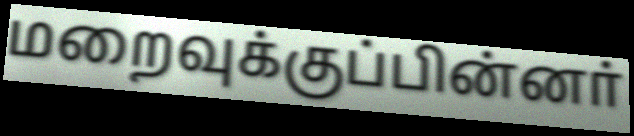
மறைவுக்குப்பின்னர்